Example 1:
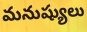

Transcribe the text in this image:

మనుష్యులు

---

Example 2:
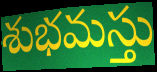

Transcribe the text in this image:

శుభమస్తు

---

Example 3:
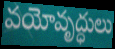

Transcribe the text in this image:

వయోవృద్ధులు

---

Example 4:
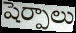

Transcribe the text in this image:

షెర్పాలు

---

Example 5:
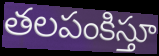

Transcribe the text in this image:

తలపంకిస్తూ